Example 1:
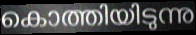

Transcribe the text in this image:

കൊത്തിയിടുന്നു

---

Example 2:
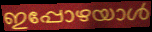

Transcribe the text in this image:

ഇപ്പോഴയാൾ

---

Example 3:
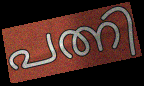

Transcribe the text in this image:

പത്നി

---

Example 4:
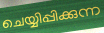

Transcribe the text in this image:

ചെയ്യിപ്പിക്കുന്ന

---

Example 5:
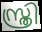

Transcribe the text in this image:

സ്ത്രി